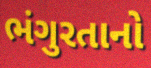
ભંગુરતાનો